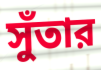
সুঁতার